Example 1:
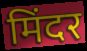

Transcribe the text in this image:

मिंदर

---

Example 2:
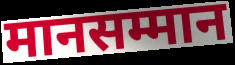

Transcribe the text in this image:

मानसम्मान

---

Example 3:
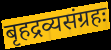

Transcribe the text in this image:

बृहद्रव्यसंग्रहः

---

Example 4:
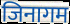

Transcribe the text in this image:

जिनागम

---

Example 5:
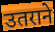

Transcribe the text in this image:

उतराने